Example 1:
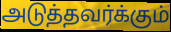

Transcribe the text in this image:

அடுத்தவர்க்கும்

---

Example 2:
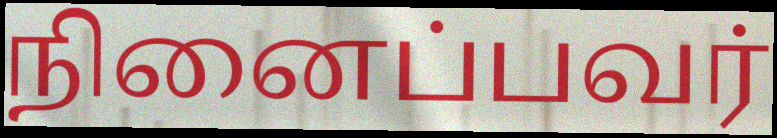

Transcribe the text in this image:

நினைப்பவர்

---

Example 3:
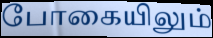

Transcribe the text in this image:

போகையிலும்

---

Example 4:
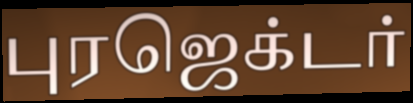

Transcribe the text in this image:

புரஜெக்டர்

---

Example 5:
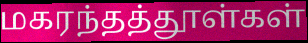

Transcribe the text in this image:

மகரந்தத்தூள்கள்